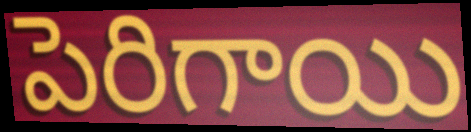
పెరిగాయి